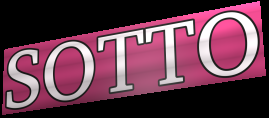
SOTTO